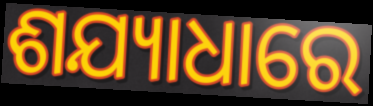
ଶଯ୍ୟାଧାରେ